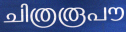
ചിത്രരൂപൗ